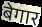
बेगार